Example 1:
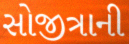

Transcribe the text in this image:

સોજીત્રાની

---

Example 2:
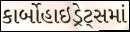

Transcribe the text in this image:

કાર્બોહાઇડ્રેટ્સમાં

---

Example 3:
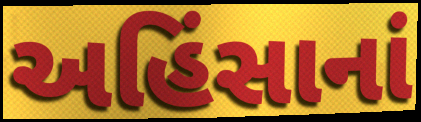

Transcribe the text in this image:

અહિંસાનાં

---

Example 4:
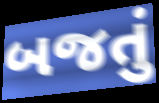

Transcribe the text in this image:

બજતું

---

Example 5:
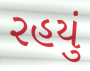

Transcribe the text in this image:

રહયું